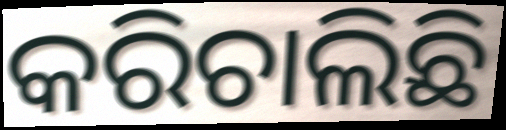
କରିଚାଲିଛି